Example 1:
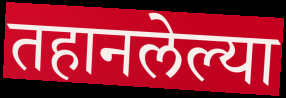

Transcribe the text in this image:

तहानलेल्या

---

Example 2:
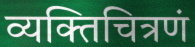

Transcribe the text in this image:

व्यक्तिचित्रणं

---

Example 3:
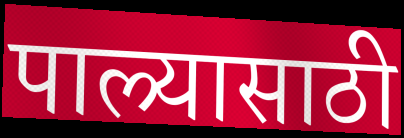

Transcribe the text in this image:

पाल्यासाठी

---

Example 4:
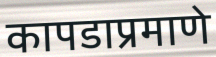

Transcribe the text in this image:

कापडाप्रमाणे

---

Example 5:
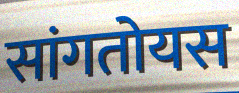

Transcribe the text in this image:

सांगतोयस